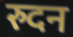
रुदन